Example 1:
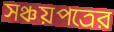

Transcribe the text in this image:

সঞ্চয়পত্রের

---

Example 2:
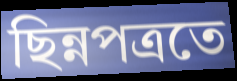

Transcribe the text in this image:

ছিন্নপত্রতে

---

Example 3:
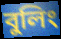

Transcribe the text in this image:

বুলিং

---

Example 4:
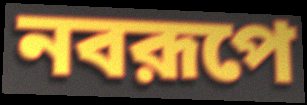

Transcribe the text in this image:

নবরূপে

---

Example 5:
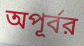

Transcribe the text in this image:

অপূর্বর